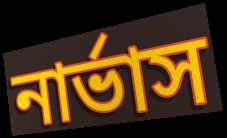
নার্ভাস